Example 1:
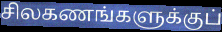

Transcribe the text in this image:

சிலகணங்களுக்குப்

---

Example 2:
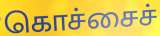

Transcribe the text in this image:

கொச்சைச்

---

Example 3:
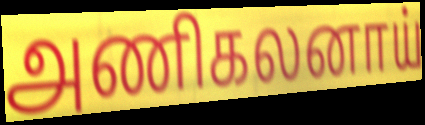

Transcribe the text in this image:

அணிகலனாய்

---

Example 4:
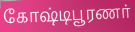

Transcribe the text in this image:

கோஷ்டிபூரணர்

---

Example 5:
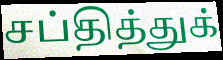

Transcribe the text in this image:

சப்தித்துக்